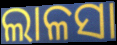
ଲାଳସା